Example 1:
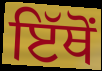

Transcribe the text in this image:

ਇੱਥੋਂ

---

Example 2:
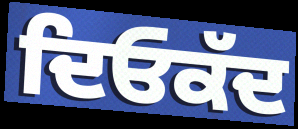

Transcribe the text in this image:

ਦਿਓਕੱਦ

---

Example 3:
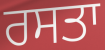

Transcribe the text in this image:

ਰਸਤਾ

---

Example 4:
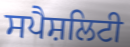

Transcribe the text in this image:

ਸਪੈਸ਼ਲਿਟੀ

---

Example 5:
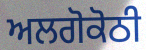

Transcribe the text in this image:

ਅਲਗੋਕੋਠੀ